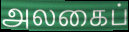
அலகைப்